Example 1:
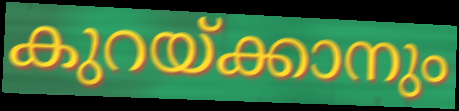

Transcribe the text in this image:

കുറയ്ക്കാനും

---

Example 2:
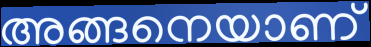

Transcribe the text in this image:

അങ്ങനെയാണ്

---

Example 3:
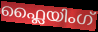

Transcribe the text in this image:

ഫ്ലൈയിംഗ്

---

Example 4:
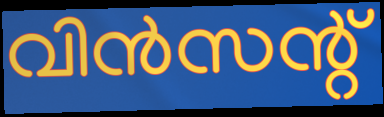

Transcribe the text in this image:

വിൻസന്റ്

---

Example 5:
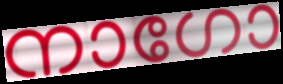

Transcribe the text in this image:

നാഗോ